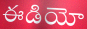
ఈడియో